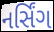
નર્સિંગ